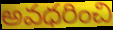
అవధరించి